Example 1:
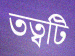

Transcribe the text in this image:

তত্বটি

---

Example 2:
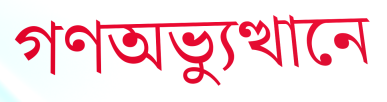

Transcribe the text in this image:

গণঅভ্যুত্থানে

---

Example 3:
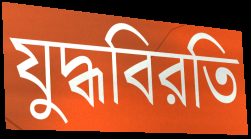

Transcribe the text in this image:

যুদ্ধবিরতি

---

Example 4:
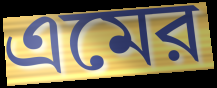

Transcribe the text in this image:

এমের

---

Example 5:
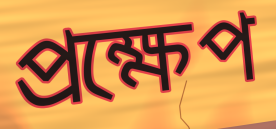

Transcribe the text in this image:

প্রক্ষেপ